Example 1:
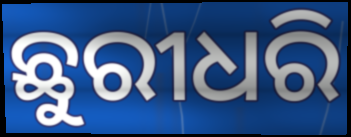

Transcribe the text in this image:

ଛୁରୀଧରି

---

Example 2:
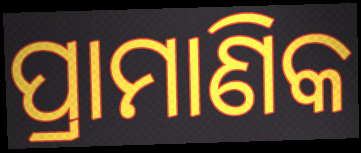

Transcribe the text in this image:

ପ୍ରାମାଣିକ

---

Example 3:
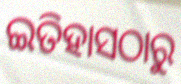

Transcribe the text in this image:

ଇତିହାସଠାରୁ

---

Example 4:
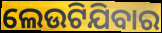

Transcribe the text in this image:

ଲେଉଟିଯିବାର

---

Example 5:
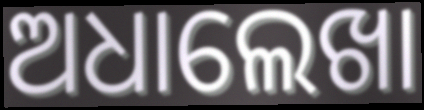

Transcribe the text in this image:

ଅଧାଲେଖା